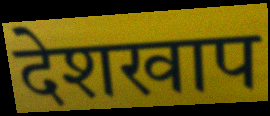
देशखाप